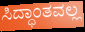
ಸಿದ್ಧಾಂತವಲ್ಲ